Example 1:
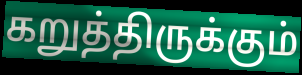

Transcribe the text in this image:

கறுத்திருக்கும்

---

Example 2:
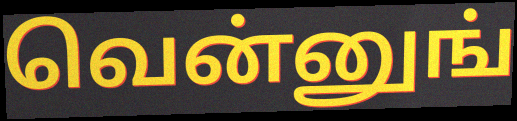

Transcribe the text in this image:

வென்னுங்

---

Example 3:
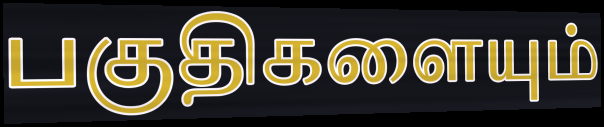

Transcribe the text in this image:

பகுதிகளையும்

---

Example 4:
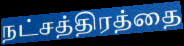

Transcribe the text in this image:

நட்சத்திரத்தை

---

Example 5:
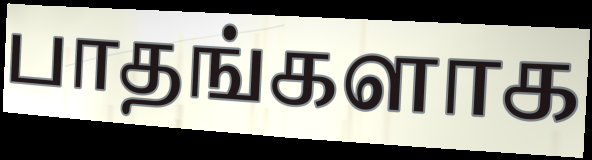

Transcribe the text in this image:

பாதங்களாக